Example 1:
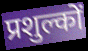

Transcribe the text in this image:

प्रशुल्कों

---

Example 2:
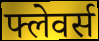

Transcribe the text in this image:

फ्लेवर्स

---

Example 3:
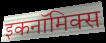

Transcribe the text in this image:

इकनॉमिक्स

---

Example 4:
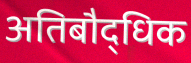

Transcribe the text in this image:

अतिबौद्धिक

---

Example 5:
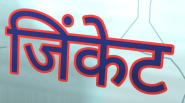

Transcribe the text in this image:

जिंकेट